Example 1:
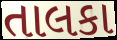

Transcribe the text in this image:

તાલકા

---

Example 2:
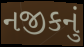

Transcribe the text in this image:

નજીકનું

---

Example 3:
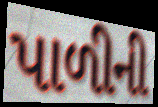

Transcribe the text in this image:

પાળીની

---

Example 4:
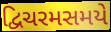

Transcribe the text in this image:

દ્વિચરમસમયે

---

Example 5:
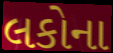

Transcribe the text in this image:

લકોના